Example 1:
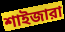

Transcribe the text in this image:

শাইজারা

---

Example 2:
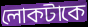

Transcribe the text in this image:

লোকটাকে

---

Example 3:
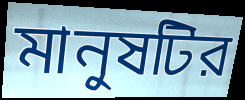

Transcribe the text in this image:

মানুষটির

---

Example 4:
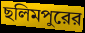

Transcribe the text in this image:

ছলিমপুরের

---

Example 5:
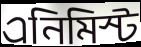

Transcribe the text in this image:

এনিমিস্ট